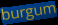
burgum